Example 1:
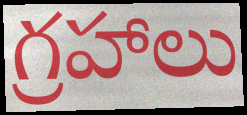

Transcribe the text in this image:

గ్రహాలు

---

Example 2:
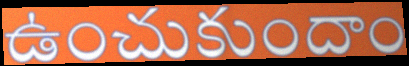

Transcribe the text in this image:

ఉంచుకుందాం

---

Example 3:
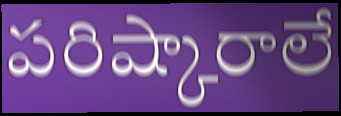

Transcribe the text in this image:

పరిష్కారాలే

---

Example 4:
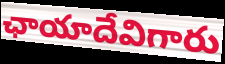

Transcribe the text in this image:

ఛాయాదేవిగారు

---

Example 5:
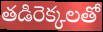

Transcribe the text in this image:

తడిరెక్కలతో